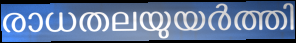
രാധതലയുയർത്തി